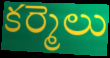
కర్మెలు